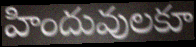
హిందువులకూ